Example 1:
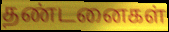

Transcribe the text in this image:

தண்டனைகள்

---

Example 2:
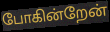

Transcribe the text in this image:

போகின்றேன்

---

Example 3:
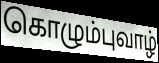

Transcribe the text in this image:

கொழும்புவாழ்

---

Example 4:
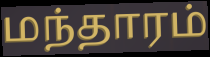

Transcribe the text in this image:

மந்தாரம்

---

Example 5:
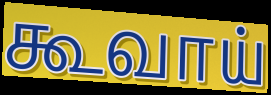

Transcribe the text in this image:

கூவாய்